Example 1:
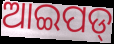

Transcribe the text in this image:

ଆଇପଡ୍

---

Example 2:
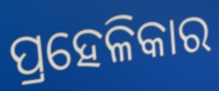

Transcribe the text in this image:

ପ୍ରହେଳିକାର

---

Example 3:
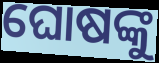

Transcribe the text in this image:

ଘୋଷଙ୍କୁ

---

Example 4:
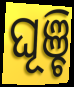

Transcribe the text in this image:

ଘୂଞ୍ଚି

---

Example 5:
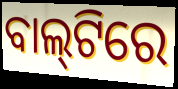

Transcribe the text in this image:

ବାଲ୍‌ଟିରେ